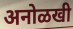
अनोळखी